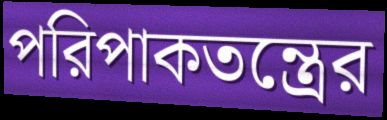
পরিপাকতন্ত্রের